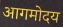
आगमोदय